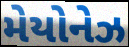
મેયોનેઝ